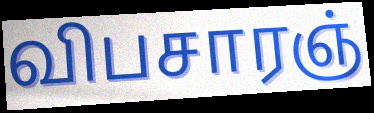
விபசாரஞ்